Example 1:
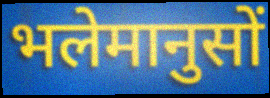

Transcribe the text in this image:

भलेमानुसों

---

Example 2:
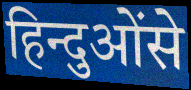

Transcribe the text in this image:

हिन्दुओंसे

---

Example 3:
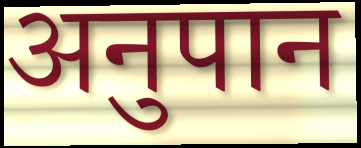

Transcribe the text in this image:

अनुपान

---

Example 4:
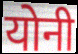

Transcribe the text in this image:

योनी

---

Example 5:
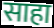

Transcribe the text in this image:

साहा